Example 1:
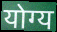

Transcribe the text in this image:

योग्य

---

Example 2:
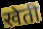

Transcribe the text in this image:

खेती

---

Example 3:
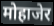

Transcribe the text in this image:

मोहाजेर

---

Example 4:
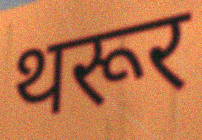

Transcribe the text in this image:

थरूर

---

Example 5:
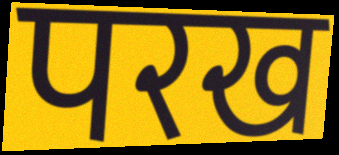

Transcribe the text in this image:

परख